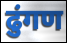
ढुंगण